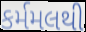
કર્મમલથી